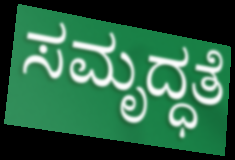
ಸಮೃದ್ಧತೆ